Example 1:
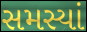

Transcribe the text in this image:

સમસ્યાં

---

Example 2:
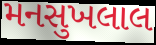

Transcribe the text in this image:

મનસુખલાલ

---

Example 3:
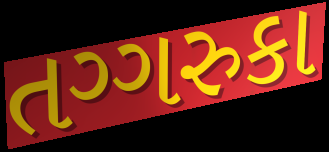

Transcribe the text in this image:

તગ્ગરુકા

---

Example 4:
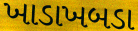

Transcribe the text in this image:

ખાડાખબડા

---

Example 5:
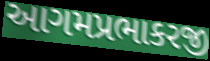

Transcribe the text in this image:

આગમપ્રભાકરજી